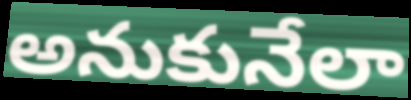
అనుకునేలా